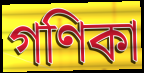
গণিকা